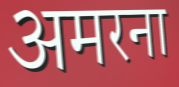
अमरना